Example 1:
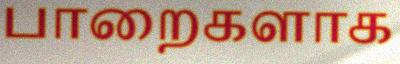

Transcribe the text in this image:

பாறைகளாக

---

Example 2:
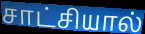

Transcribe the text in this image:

சாட்சியால்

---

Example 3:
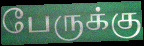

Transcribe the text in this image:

பேருக்கு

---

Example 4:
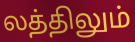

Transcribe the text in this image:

லத்திலும்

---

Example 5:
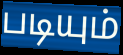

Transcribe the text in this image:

படியும்